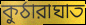
কুঠারাঘাত